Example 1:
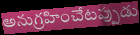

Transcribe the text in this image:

అనుగ్రహించేటప్పుడు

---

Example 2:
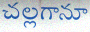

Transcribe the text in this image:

చల్లగానూ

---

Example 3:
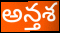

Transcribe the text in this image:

అన్తశ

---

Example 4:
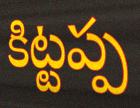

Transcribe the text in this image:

కిట్టప్ప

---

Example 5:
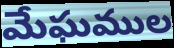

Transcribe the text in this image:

మేఘముల